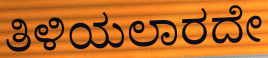
ತಿಳಿಯಲಾರದೇ